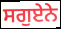
ਸਗੁਏਨੇ